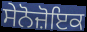
ਸੇਨੋਜ਼ੋਇਕ